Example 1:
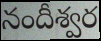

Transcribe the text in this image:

నందీశ్వర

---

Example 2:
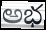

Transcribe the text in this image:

అభ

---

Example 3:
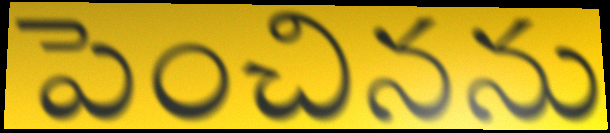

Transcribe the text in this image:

పెంచినను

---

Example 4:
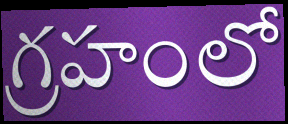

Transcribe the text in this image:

గ్రహంలో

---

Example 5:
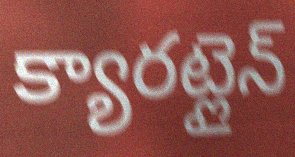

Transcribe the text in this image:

క్యారట్లైన్